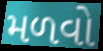
મળવો